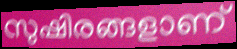
സുഷിരങ്ങളാണ്